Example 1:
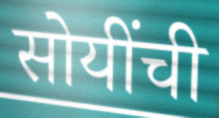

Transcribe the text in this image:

सोयींची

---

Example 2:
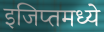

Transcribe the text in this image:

इजिप्तमध्ये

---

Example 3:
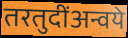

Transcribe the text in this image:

तरतुदींअन्वये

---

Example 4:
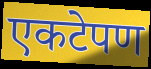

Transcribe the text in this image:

एकटेपण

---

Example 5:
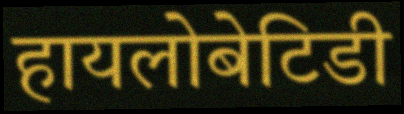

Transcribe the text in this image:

हायलोबेटिडी